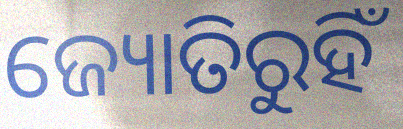
ଜ୍ୟୋତିରୁହିଁ